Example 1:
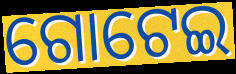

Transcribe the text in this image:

ଗୋଟେଇ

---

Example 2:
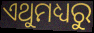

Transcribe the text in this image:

ଏଥୁମଧ୍ୟରୁ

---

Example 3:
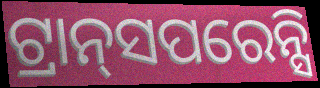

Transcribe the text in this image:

ଟ୍ରାନ୍‌ସପରେନ୍ସି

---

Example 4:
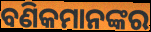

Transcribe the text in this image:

ବଣିକମାନଙ୍କର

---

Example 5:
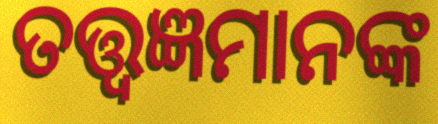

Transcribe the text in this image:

ତତ୍ତ୍ୱଜ୍ଞମାନଙ୍କ